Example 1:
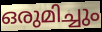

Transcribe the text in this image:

ഒരുമിച്ചും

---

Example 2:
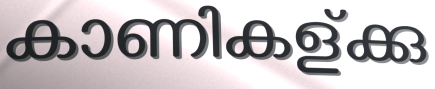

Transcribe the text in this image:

കാണികള്ക്കു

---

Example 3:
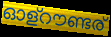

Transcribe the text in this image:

ഓള്റൗണ്ടര്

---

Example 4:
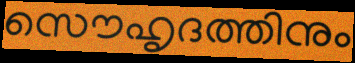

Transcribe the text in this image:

സൌഹൃദത്തിനും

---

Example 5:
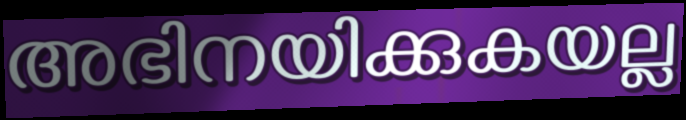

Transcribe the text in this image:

അഭിനയിക്കുകയല്ല